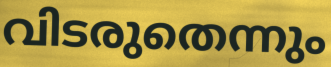
വിടരുതെന്നും